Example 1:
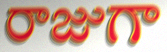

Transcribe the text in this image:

రాజుగా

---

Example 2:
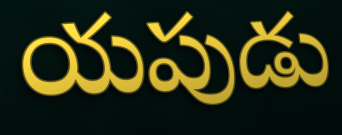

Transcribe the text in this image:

యపుడు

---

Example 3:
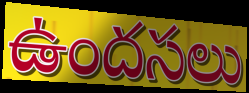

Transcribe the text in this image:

ఉందసలు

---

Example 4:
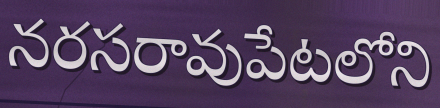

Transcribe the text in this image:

నరసరావుపేటలోని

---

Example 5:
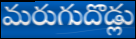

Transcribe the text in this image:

మరుగుదొడ్లు